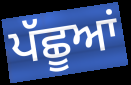
ਪੱਛੂਆਂ